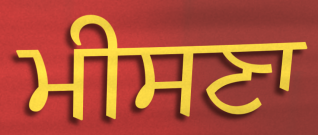
ਮੀਸਣਾ